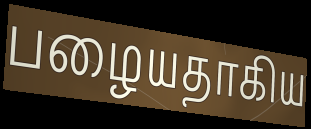
பழையதாகிய